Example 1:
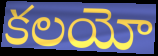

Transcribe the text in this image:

కలయో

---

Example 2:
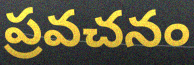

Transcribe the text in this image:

ప్రవచనం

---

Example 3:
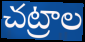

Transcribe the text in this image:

చట్రాల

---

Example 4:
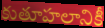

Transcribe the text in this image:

కుతూహలానికీ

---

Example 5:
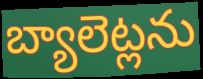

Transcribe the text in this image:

బ్యాలెట్లను